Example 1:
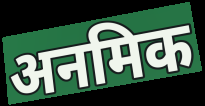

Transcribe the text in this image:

अनमिक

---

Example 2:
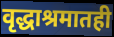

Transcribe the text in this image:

वृद्धाश्रमातही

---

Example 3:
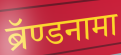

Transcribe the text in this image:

ब्रॅण्डनामा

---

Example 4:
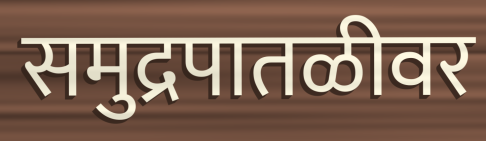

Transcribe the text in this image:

समुद्रपातळीवर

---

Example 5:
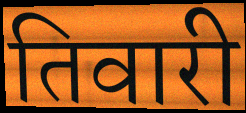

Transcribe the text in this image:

तिवारी